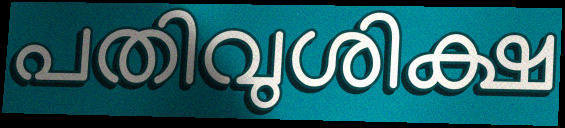
പതിവുശിക്ഷ